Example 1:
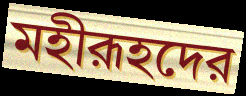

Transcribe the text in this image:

মহীরূহদের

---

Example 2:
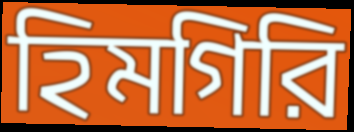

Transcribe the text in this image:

হিমগিরি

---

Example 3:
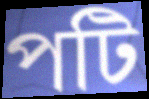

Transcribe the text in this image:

পটি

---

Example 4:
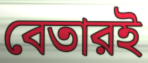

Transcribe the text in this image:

বেতারই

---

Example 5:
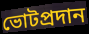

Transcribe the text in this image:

ভোটপ্রদান